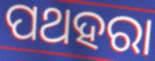
ପଥହରା